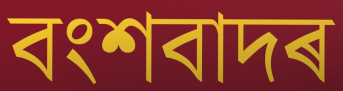
বংশবাদৰ